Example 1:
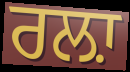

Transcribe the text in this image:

ਰਲ਼ਾ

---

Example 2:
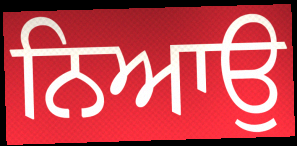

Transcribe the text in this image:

ਨਿਆਉ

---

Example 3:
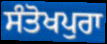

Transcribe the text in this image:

ਸੰਤੋਖਪੁਰਾ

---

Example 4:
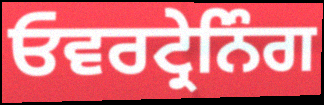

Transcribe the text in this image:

ਓਵਰਟ੍ਰੇਨਿੰਗ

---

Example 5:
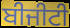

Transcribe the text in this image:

ਬੀਜੀਟੀ